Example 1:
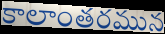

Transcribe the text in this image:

కాలాంతరమున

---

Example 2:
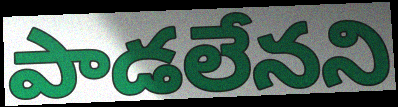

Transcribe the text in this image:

పాడలేనని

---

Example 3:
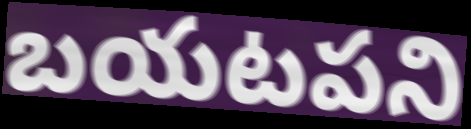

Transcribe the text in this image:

బయటపని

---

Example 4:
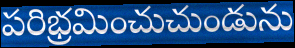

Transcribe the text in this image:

పరిభ్రమించుచుండును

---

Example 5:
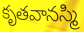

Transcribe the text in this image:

కృతవానస్మి